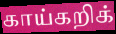
காய்கறிக்